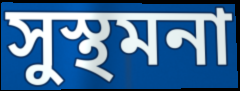
সুস্থমনা